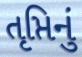
તૃપ્તિનું